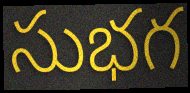
సుభగ